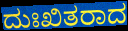
ದುಃಖಿತರಾದ